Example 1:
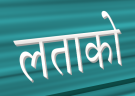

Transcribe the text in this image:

लताको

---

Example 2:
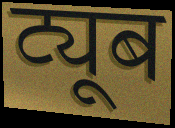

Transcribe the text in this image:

ट्यूब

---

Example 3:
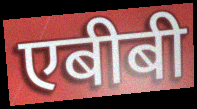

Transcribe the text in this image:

एबीबी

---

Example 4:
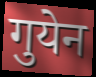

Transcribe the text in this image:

गुयेन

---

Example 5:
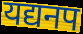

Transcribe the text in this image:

यद्यनप